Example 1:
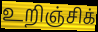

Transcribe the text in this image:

உறிஞ்சிக்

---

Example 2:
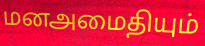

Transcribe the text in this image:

மனஅமைதியும்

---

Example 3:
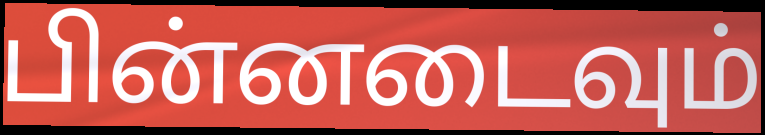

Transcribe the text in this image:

பின்னடைவும்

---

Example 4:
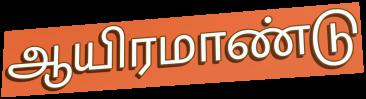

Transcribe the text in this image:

ஆயிரமாண்டு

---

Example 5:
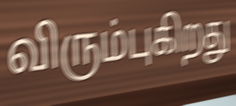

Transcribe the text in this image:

விரும்புகிறது